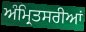
ਅੰਮ੍ਰਿਤਸਰੀਆਂ